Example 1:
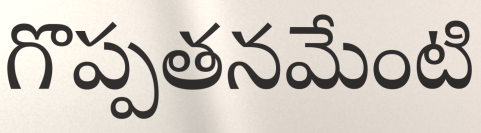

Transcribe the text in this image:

గొప్పతనమేంటి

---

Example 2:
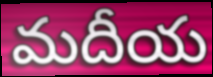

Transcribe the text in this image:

మదీయ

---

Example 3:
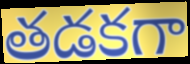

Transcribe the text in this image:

తడకగా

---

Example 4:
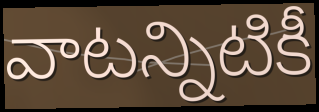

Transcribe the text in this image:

వాటన్నిటికీ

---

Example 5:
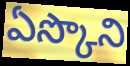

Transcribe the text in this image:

ఏస్కొని